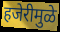
हजेरीमुळे